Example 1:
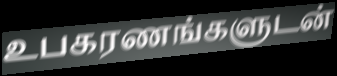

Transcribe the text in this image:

உபகரணங்களுடன்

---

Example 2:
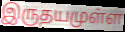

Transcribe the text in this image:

இருதயமுள்ள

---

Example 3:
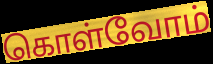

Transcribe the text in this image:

கொள்வோம்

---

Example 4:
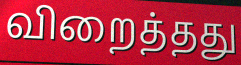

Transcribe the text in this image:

விறைத்தது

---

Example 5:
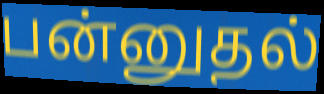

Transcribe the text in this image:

பன்னுதல்